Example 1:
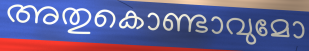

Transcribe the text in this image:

അതുകൊണ്ടാവുമോ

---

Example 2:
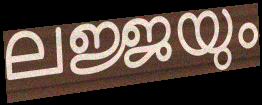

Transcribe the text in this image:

ലജ്ജയും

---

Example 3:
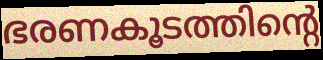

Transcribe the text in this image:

ഭരണകൂടത്തിന്റെ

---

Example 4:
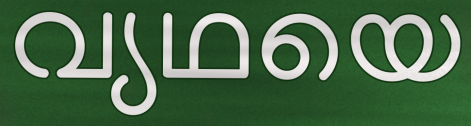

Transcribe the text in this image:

വ്യഥയെ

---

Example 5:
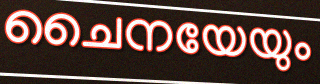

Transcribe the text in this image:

ചൈനയേയും